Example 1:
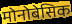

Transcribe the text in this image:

मोनोबेसिक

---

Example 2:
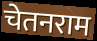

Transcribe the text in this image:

चेतनराम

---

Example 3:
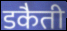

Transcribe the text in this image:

डकैती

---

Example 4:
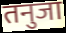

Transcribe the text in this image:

तनुजा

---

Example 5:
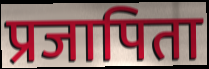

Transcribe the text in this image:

प्रजापिता